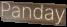
Panday